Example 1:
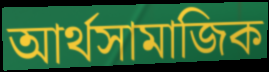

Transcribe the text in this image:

আৰ্থসামাজিক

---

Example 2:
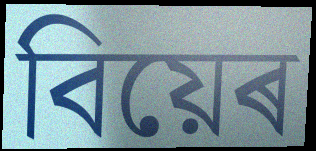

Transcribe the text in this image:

বিয়েৰ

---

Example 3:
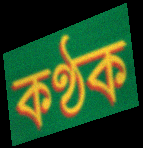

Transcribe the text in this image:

কণ্ঠক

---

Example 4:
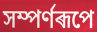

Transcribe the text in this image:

সম্পৰ্ণৰূপে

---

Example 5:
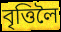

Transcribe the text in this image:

বৃত্তিলৈ